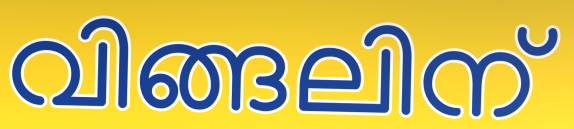
വിങ്ങലിന്